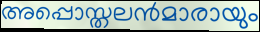
അപ്പൊസ്തലൻമാരായും